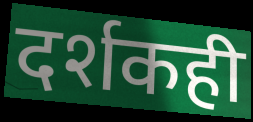
दर्शकही